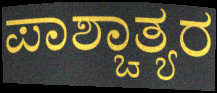
ಪಾಶ್ಚಾತ್ಯರ